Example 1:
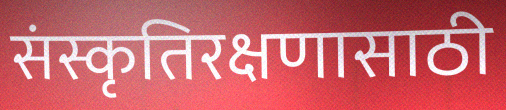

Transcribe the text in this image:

संस्कृतिरक्षणासाठी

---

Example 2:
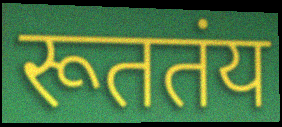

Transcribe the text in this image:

रूततंय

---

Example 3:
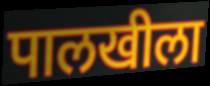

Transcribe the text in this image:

पालखीला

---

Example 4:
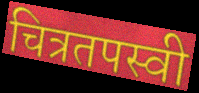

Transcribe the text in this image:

चित्रतपस्वी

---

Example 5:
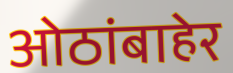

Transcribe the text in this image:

ओठांबाहेर